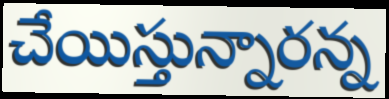
చేయిస్తున్నారన్న